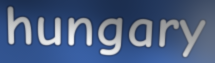
hungary